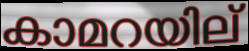
കാമറയില്